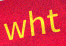
wht